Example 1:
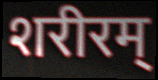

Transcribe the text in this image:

शरीरम्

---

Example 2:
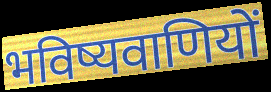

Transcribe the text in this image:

भविष्यवाणियों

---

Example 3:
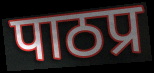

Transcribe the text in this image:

पाठप्र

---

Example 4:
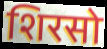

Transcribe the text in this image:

शिरसो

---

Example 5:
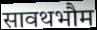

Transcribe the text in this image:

सावथभौम